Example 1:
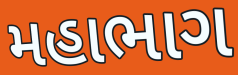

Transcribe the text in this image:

મહાભાગ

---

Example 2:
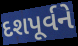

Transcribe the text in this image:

દશપૂર્વને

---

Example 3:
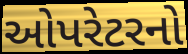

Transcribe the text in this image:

ઓપરેટરનો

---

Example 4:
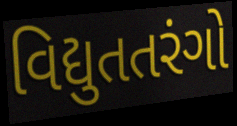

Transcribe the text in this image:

વિદ્યુતતરંગો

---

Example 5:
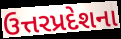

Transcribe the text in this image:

ઉત્તરપ્રદેશના